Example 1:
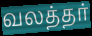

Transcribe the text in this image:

வலத்தர்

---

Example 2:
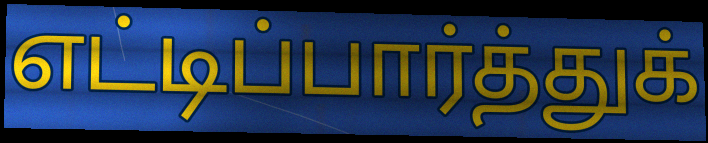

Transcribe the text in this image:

எட்டிப்பார்த்துக்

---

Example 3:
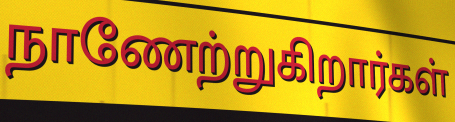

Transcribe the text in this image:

நாணேற்றுகிறார்கள்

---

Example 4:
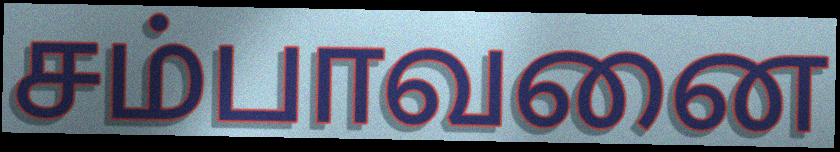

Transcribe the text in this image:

சம்பாவனை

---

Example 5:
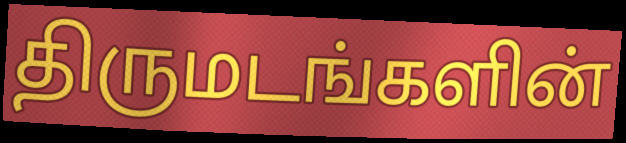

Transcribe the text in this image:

திருமடங்களின்